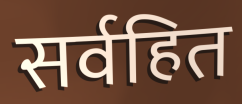
सर्वहित